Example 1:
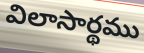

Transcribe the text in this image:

విలాసార్థము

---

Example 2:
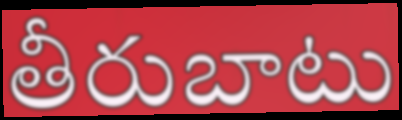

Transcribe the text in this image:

తీరుబాటు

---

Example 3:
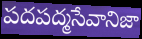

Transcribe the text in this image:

పదపద్మసేవానిజా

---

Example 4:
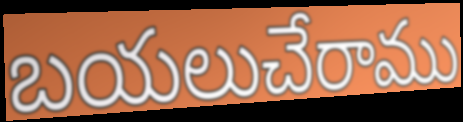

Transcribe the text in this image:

బయలుచేరాము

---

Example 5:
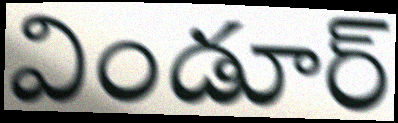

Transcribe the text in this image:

విండూర్